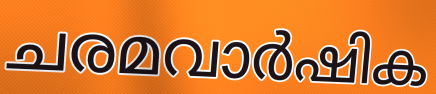
ചരമവാർഷിക